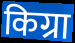
किग्रा